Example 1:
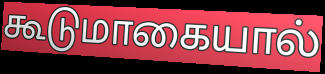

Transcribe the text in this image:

கூடுமாகையால்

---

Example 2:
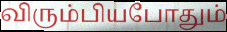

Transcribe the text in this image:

விரும்பியபோதும்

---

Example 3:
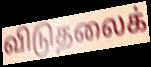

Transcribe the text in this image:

விடுதலைக்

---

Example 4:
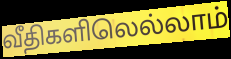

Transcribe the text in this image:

வீதிகளிலெல்லாம்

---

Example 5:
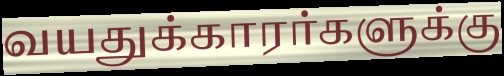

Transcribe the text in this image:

வயதுக்காரர்களுக்கு